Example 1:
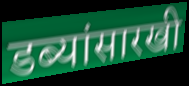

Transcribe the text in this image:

डब्यांसारखी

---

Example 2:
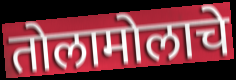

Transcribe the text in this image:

तोलामोलाचे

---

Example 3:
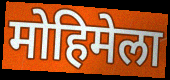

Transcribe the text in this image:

मोहिमेला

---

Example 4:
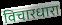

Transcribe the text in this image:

विचारधारा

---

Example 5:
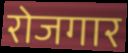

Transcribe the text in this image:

रोजगार